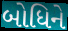
બોધિને